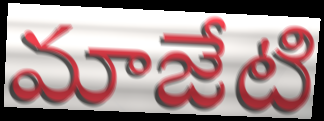
మాజేటి